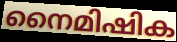
നൈമിഷിക